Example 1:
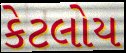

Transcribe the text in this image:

કેટલોય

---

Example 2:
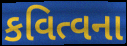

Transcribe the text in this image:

કવિત્વના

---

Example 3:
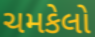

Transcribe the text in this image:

ચમકેલો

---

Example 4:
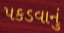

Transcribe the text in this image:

પકડવાનું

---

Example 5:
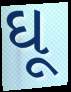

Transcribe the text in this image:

ઘૂ